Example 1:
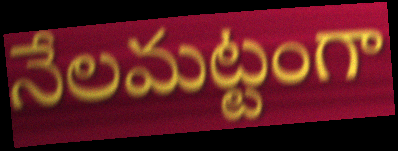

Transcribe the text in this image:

నేలమట్టంగా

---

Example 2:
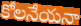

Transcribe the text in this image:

కోలనేయనా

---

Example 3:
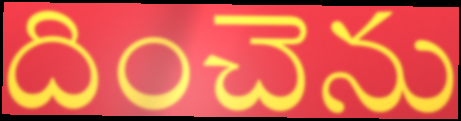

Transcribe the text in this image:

దించెను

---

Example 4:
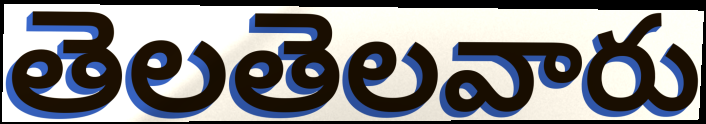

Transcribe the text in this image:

తెలతెలవారు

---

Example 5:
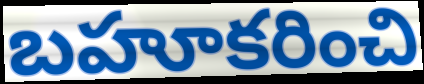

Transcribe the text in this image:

బహూకరించి